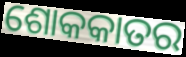
ଶୋକକାତର